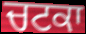
ਚਟਕਾ